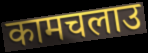
कामचलाउ